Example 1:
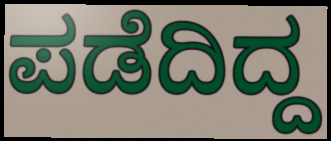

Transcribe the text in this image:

ಪಡೆದಿದ್ದ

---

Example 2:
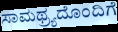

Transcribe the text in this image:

ಸಾಮಥ್ರ್ಯದೊಂದಿಗೆ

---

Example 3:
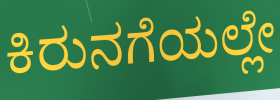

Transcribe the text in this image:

ಕಿರುನಗೆಯಲ್ಲೇ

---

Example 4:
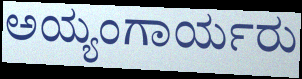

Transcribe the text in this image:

ಅಯ್ಯಂಗಾರ್ಯರು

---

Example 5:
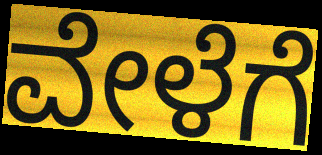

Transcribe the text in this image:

ವೇಳೆಗೆ